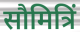
सौमित्रिं